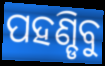
ପହଣ୍ଡିବୁ